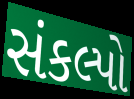
સંકલ્પો